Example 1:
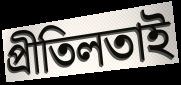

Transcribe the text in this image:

প্ৰীতিলতাই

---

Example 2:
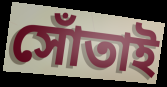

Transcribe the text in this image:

সোঁতাই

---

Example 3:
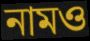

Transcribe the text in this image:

নামও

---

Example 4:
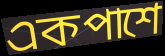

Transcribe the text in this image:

একপাশে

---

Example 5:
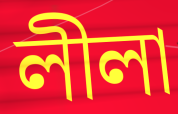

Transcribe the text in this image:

লীলা